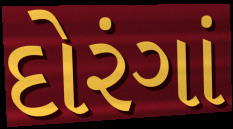
દોરંગાં